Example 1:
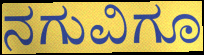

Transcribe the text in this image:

ನಗುವಿಗೂ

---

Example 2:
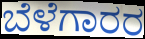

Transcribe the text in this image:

ಬೆಳೆಗಾರರ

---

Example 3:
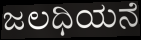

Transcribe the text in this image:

ಜಲಧಿಯನೆ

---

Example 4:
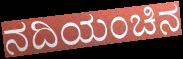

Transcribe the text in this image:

ನದಿಯಂಚಿನ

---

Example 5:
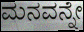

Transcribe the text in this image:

ಮನವನ್ನೇ